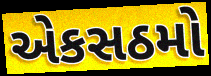
એકસઠમો